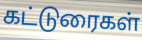
கட்டுரைகள்